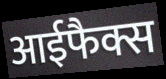
आईफैक्स